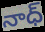
నాధ్